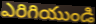
ఎరిగియుండి